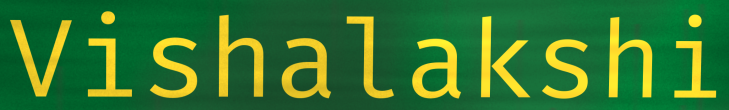
Vishalakshi